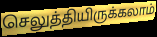
செலுத்தியிருக்கலாம்